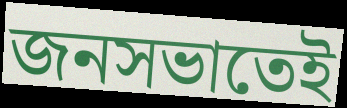
জনসভাতেই